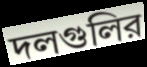
দলগুলির